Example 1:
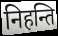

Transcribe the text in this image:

निहन्ति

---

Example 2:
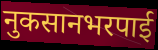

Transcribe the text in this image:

नुकसानभरपाई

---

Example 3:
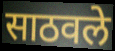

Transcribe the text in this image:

साठवले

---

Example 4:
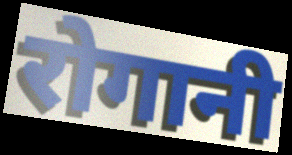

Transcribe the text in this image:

रोगानी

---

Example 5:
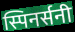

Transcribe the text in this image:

स्पिनर्सनी